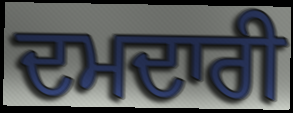
ਦਮਦਾਰੀ